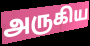
அருகிய